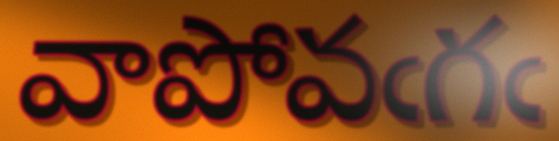
వాపోవఁగఁ